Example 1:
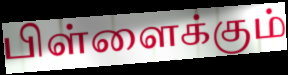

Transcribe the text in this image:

பிள்ளைக்கும்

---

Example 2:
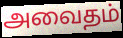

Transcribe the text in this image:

அவைதம்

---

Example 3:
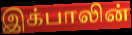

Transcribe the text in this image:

இக்பாலின்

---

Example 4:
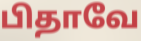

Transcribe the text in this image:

பிதாவே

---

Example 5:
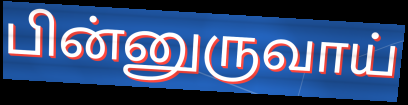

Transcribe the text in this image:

பின்னுருவாய்